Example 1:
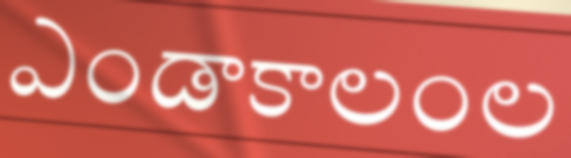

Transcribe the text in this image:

ఎండాకాలంల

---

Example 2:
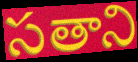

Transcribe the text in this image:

సతాని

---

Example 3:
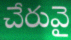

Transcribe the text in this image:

చేరువై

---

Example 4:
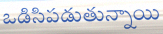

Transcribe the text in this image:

ఒడిసిపడుతున్నాయి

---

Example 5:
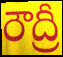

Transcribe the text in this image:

రౌద్రీ